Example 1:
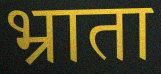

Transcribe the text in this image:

भ्राता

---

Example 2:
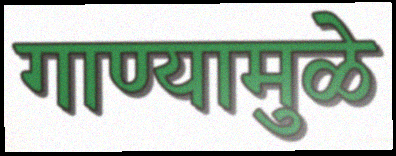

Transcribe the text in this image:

गाण्यामुळे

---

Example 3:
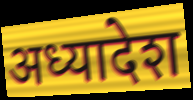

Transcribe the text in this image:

अध्यादेश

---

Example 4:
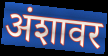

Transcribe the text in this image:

अंशावर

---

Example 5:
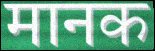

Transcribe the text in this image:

मानक